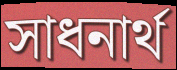
সাধনার্থ